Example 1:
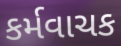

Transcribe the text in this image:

કર્મવાચક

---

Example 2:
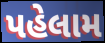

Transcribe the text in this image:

પહેલામ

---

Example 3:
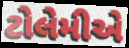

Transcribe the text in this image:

ટોલેમીએ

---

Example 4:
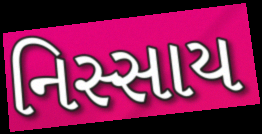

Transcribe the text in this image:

નિસ્સાય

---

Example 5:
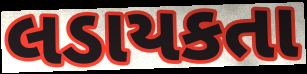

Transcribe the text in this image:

લડાયકતા